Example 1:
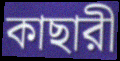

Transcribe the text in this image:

কাছারী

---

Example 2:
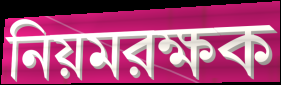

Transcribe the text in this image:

নিয়মরক্ষক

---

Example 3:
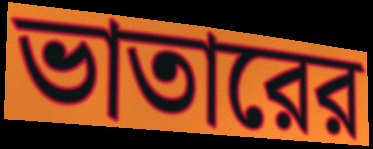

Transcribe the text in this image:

ভাতারের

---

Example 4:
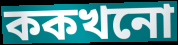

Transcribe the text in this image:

ককখনো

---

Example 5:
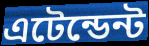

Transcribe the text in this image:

এটেন্ডেন্ট